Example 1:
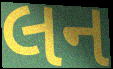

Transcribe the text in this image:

લન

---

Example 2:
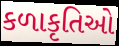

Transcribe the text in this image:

કળાકૃતિઓ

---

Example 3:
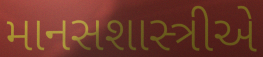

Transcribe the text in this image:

માનસશાસ્ત્રીએ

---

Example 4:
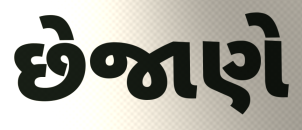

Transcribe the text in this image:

છેજાણે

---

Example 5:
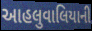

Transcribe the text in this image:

આહલુવાલિયાની